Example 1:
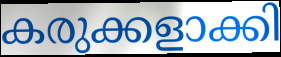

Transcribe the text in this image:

കരുക്കളാക്കി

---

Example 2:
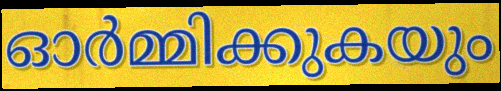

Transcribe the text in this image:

ഓർമ്മിക്കുകയും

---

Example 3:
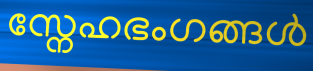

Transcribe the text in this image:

സ്നേഹഭംഗങ്ങൾ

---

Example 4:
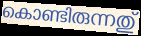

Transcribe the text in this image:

കൊണ്ടിരുന്നതു്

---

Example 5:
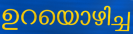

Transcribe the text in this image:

ഉറയൊഴിച്ച